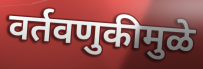
वर्तवणुकीमुळे